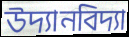
উদ্যানবিদ্যা